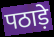
पठाड़े